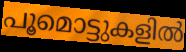
പൂമൊട്ടുകളിൽ